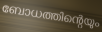
ബോധത്തിന്റെയും